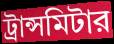
ট্রান্সমিটার